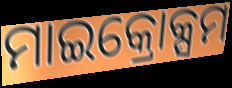
ମାଇକ୍ରୋକ୍ସମ